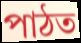
পাঠত